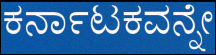
ಕರ್ನಾಟಕವನ್ನೇ